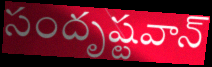
సందృష్టవాన్